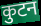
कुटन